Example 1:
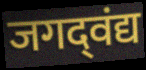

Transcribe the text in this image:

जगद्‌वंद्य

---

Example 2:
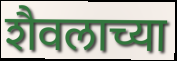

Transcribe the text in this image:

शैवलाच्या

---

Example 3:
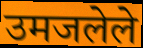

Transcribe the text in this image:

उमजलेले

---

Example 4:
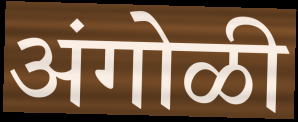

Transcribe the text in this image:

अंगोळी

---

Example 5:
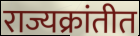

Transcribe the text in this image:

राज्यक्रांतीत